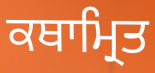
ਕਥਾਮ੍ਰਿਤ